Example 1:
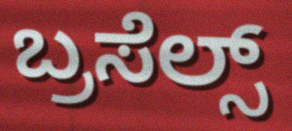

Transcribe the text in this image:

ಬ್ರಸೆಲ್ಸ್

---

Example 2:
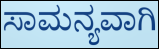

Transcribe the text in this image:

ಸಾಮನ್ಯವಾಗಿ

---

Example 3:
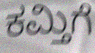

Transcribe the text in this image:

ಕಮ್ತಿಗೆ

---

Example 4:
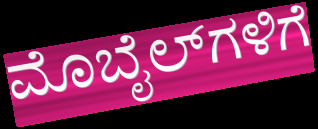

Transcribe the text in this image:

ಮೊಬೈಲ್‌ಗಳಿಗೆ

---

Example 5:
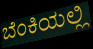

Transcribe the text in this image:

ಬೆಂಕಿಯಲ್ಲಿ